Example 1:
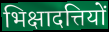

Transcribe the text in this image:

भिक्षादत्तियों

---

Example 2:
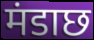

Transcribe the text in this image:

मंडाछ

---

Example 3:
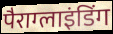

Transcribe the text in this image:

पैराग्लाइंडिंग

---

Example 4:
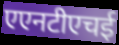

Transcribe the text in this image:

एएनटीएचई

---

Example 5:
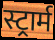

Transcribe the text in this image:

स्ट्रार्म